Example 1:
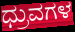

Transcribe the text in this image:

ಧ್ರುವಗಳ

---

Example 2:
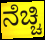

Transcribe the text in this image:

ನೆಚ್ಚಿ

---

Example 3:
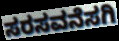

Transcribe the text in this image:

ಸರಸವನೆಸಗಿ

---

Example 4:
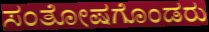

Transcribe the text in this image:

ಸಂತೋಷಗೊಂಡರು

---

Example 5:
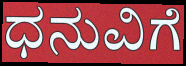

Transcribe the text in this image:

ಧನುವಿಗೆ